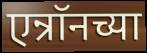
एन्रॉनच्या